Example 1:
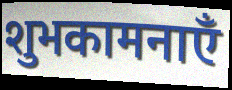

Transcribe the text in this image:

शुभकामनाएँ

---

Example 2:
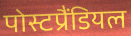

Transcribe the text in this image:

पोस्टप्रैंडियल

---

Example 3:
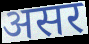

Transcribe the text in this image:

असर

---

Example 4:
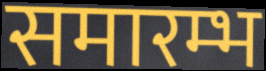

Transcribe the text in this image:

समारम्भ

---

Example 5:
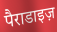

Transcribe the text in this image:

पैराडाइज़